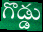
గొడ్డు